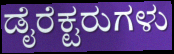
ಡೈರೆಕ್ಟರುಗಳು